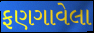
ફણગાવેલા